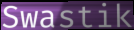
Swastik